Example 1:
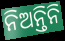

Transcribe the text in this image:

ନିଅନ୍ତିନି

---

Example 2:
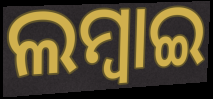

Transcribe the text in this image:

ଲମ୍ବାଇ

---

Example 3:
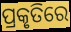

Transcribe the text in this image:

ପ୍ରକୃତିରେ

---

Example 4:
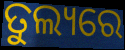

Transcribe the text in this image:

ତୁଲ୍ୟରେ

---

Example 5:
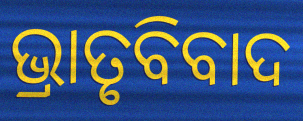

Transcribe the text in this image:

ଭ୍ରାତୃବିବାଦ